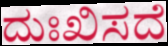
ದುಃಖಿಸದೆ